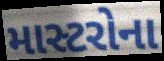
માસ્ટરોના